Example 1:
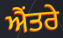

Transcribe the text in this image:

ਐਂਤਰੇ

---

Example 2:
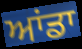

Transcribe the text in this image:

ਆਂਡਾ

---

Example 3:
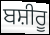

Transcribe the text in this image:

ਬਸ਼ੀਰੂ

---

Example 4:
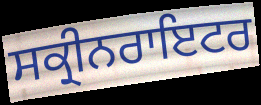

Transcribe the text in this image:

ਸਕ੍ਰੀਨਰਾਇਟਰ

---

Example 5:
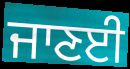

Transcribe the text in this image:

ਜਾਣਈ